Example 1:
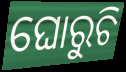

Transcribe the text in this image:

ଘୋରୁଚି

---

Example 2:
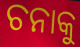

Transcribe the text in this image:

ଚନାକୁ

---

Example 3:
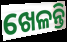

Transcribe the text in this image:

ଖେଳନ୍ତି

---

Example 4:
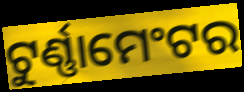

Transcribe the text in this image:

ଟୁର୍ଣ୍ଣାମେଂଟର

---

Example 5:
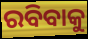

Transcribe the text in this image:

ରବିବାକୁ